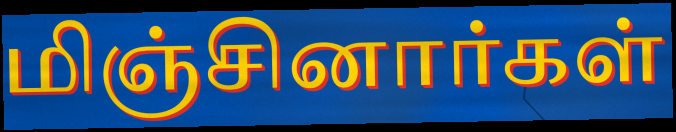
மிஞ்சினார்கள்